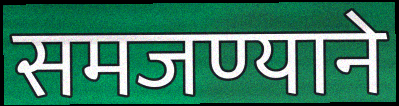
समजण्याने